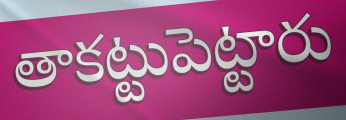
తాకట్టుపెట్టారు